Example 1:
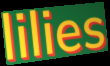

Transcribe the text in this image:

lilies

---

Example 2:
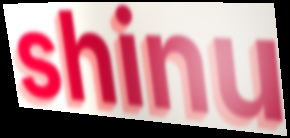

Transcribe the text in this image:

shinu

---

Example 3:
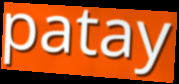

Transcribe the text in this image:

patay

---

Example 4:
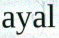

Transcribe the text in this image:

ayal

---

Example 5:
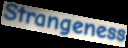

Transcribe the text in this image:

Strangeness